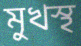
মুখস্থ